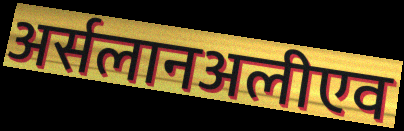
अर्सलानअलीएव